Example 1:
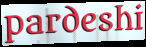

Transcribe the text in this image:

pardeshi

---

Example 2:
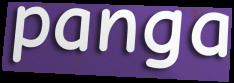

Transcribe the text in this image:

panga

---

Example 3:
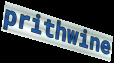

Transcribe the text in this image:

prithwine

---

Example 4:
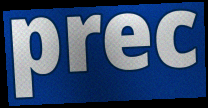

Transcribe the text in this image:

prec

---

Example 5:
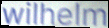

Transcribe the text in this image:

wilhelm